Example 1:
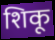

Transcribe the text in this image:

शिकू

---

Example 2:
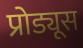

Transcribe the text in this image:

प्रोड्यूस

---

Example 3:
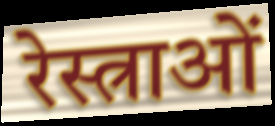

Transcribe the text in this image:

रेस्त्राओं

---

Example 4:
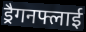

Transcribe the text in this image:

ड्रैगनफ्लाई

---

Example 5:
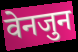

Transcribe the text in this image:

वेनजुन